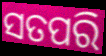
ସତପରି